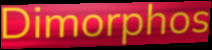
Dimorphos